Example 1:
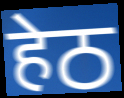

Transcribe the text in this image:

हेठ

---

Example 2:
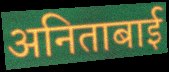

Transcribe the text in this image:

अनिताबाई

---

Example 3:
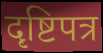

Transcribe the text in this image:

दृष्टिपत्र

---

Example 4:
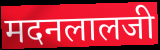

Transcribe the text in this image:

मदनलालजी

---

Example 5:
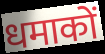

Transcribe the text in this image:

धमाकों